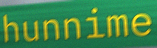
hunnime